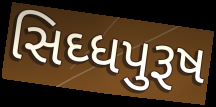
સિઘ્ધપુરૂષ